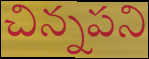
చిన్నపని